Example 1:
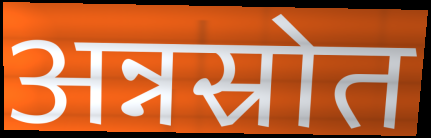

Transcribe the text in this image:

अन्नस्रोत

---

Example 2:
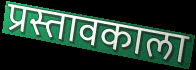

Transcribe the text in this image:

प्रस्तावकाला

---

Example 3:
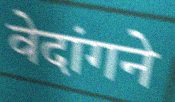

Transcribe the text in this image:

वेदांगने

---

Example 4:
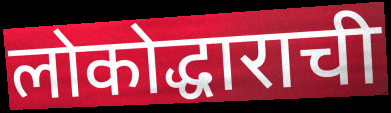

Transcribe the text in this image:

लोकोद्धाराची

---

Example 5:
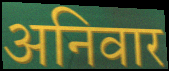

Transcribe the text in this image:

अनिवार